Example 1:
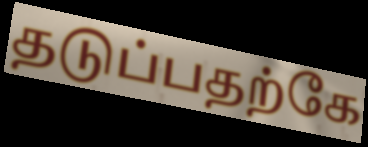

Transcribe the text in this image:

தடுப்பதற்கே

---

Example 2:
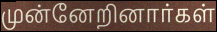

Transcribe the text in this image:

முன்னேறினார்கள்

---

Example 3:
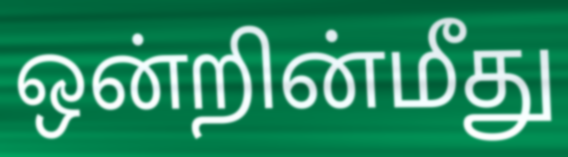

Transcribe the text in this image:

ஒன்றின்மீது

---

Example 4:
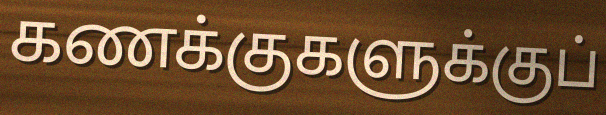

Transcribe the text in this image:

கணக்குகளுக்குப்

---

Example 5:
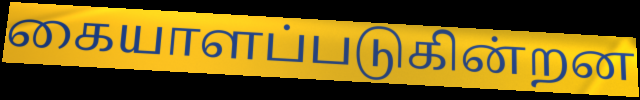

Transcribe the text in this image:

கையாளப்படுகின்றன